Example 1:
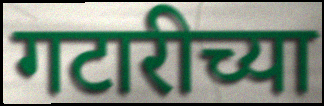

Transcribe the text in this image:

गटारीच्या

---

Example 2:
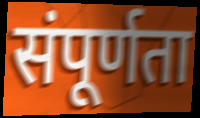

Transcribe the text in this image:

संपूर्णता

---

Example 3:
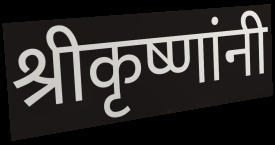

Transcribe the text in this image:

श्रीकृष्णांनी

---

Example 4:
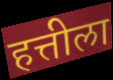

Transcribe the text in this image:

हत्तीला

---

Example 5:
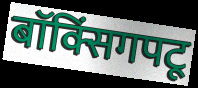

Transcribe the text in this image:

बॉक्सिंगपटू